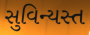
સુવિન્યસ્ત